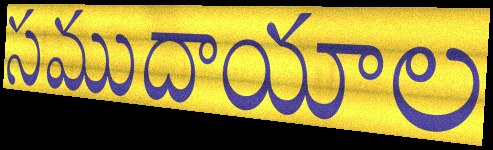
సముదాయాల